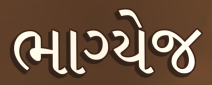
ભાગ્યેજ